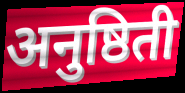
अनुष्ठिती